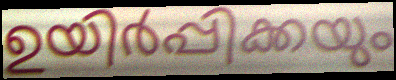
ഉയിർപ്പിക്കയും